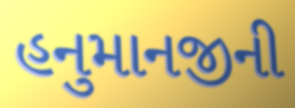
હનુમાનજીની